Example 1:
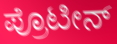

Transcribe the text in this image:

ಪ್ರೊಟೀನ್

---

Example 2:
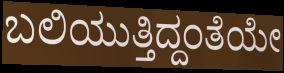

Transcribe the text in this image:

ಬಲಿಯುತ್ತಿದ್ದಂತೆಯೇ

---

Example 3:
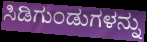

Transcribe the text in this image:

ಸಿಡಿಗುಂಡುಗಳನ್ನು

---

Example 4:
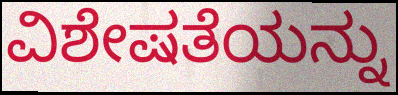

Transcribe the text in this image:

ವಿಶೇಷತೆಯನ್ನು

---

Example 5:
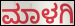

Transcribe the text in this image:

ಮಾಳಗಿ